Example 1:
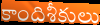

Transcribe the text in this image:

కాందిశీకులు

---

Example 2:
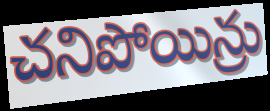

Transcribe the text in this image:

చనిపోయిన్రు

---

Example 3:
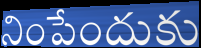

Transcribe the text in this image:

నింపేందుకు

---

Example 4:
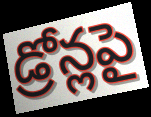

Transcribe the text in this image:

డ్రోన్లపై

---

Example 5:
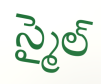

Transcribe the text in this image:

స్మైల్